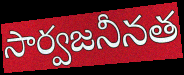
సార్వజనీనత